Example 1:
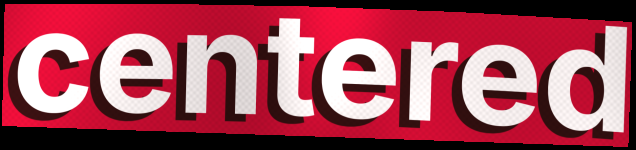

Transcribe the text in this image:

centered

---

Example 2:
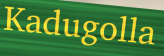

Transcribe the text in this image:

Kadugolla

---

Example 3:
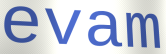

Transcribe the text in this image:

evam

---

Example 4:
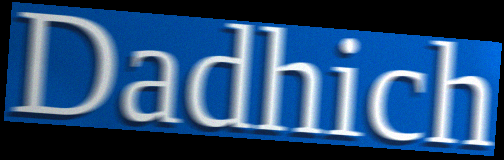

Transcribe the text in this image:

Dadhich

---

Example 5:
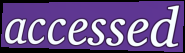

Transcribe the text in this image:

accessed